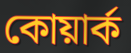
কোয়ার্ক